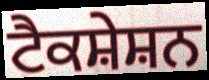
ਟੈਕਸ਼ੇਸ਼ਨ